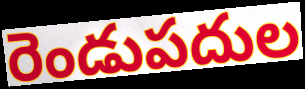
రెండుపదుల